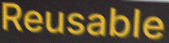
Reusable